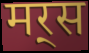
मर्स